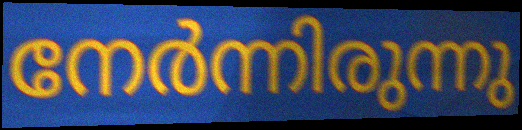
നേർന്നിരുന്നു